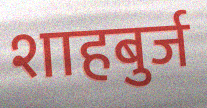
शाहबुर्ज